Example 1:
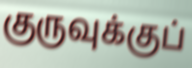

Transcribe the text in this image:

குருவுக்குப்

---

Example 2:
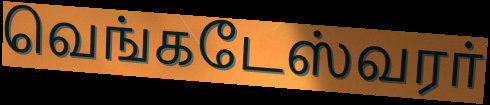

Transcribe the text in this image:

வெங்கடேஸ்வரர்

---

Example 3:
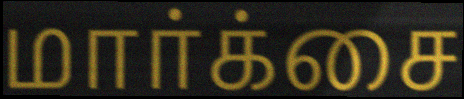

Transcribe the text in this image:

மார்க்சை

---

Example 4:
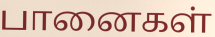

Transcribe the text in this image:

பானைகள்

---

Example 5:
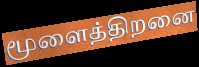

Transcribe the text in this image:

மூளைத்திறனை